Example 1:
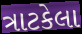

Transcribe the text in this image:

ત્રાટકેલા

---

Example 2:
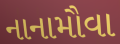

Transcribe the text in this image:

નાનામૌવા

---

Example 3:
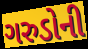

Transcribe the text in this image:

ગરુડોની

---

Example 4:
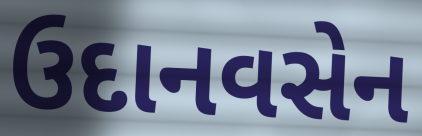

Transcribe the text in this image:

ઉદાનવસેન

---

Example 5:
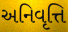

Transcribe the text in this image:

અનિવૃત્તિ